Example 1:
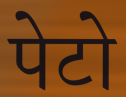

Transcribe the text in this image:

पेटो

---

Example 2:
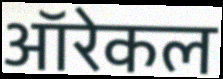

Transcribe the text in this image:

ऑरेकल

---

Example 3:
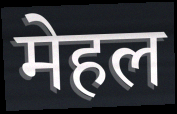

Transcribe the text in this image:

मेहल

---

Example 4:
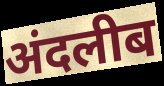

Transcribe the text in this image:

अंदलीब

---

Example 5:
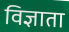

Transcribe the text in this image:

विज्ञाता